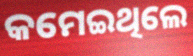
କମେଇଥିଲେ